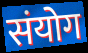
संयोग